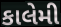
કાલેમી